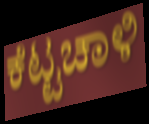
ಕೆಟ್ಟಚಾಳಿ